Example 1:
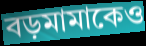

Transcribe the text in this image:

বড়মামাকেও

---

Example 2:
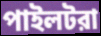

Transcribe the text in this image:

পাইলটরা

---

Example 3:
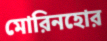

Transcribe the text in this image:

মোরিনহোর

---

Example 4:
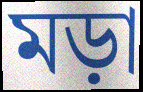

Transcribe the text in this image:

মড়া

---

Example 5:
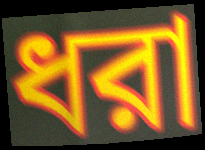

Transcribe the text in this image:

ধরা